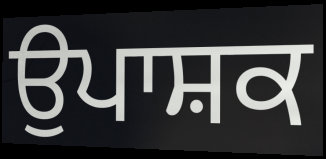
ਉਪਾਸ਼ਕ